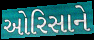
ઓરિસાને